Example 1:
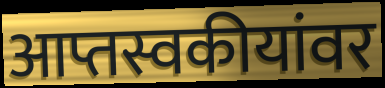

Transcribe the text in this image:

आप्तस्वकीयांवर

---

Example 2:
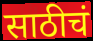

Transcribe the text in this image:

साठीचं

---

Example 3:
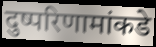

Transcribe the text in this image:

दुष्परिणामांकडे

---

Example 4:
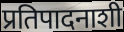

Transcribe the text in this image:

प्रतिपादनाशी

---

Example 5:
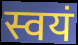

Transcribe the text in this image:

स्वयं